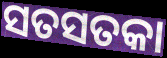
ସତସତକା